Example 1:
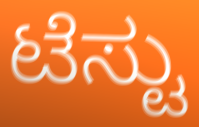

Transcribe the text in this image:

ಟೆಸ್ಟು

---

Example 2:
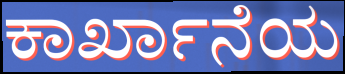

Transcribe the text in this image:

ಕಾರ್ಖಾನೆಯ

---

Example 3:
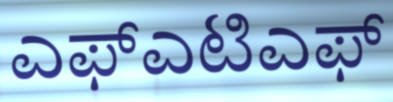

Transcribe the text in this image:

ಎಫ್ಎಟಿಎಫ್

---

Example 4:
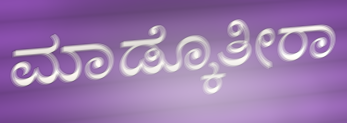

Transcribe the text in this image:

ಮಾಡ್ಕೊತೀರಾ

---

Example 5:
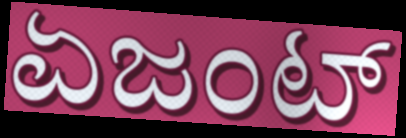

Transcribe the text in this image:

ಏಜಂಟ್